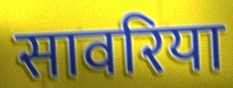
सावरिया